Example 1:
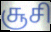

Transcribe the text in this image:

சூசி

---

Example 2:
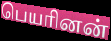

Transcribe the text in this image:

பெயரினன்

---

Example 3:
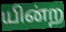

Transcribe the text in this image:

யின்ற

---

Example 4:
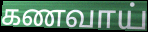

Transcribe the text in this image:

கணவாய்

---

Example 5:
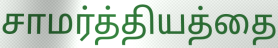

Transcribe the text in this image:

சாமர்த்தியத்தை